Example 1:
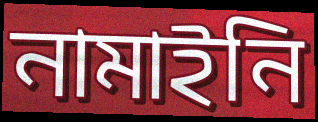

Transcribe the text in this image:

নামাইনি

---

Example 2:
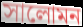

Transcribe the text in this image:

সালোমন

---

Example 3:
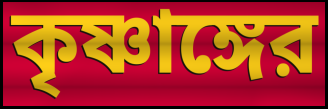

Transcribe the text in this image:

কৃষ্ণাঙ্গের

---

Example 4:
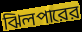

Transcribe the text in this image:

ঝিলপারের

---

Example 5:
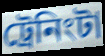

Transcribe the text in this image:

ট্রেনিংটা